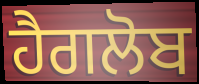
ਹੈਗਲੋਬ